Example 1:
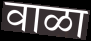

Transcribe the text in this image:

वाळा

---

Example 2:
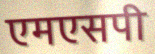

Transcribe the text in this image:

एमएसपी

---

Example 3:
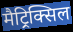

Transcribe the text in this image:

मैट्रिक्सिल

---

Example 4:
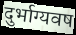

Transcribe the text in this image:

दुर्भाग्यवष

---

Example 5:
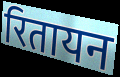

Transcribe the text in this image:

रितायन